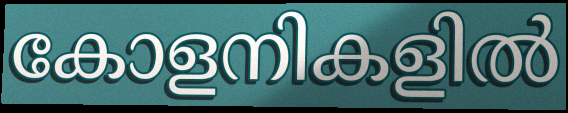
കോളനികളിൽ